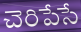
చెరిపేసే